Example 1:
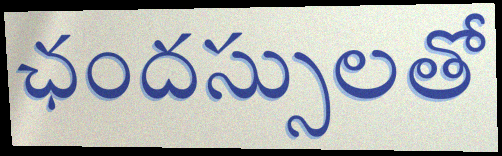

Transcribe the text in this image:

ఛందస్సులతో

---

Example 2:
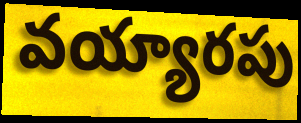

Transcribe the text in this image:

వయ్యారపు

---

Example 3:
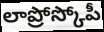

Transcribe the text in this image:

లాప్రోస్కోపీ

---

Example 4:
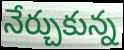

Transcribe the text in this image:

నేర్చుకున్న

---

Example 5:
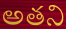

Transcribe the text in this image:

అతని